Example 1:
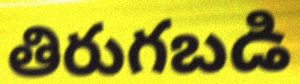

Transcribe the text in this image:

తిరుగబడి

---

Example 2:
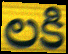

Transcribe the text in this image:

లకి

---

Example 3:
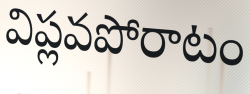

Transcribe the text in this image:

విప్లవపోరాటం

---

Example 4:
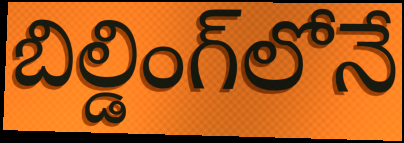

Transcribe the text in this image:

బిల్డింగ్‌లోనే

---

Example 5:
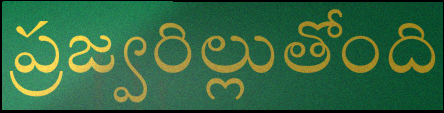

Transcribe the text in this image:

ప్రజ్వరిల్లుతోంది